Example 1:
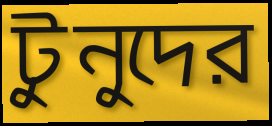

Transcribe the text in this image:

টুনুদের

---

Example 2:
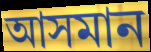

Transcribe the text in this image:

আসমান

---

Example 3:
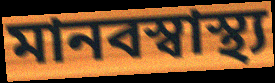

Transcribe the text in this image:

মানবস্বাস্থ্য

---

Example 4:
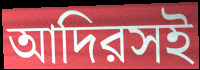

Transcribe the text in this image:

আদিরসই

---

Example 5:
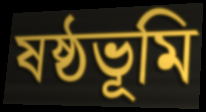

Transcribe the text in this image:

ষষ্ঠভূমি